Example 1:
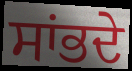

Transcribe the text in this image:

ਸਾਂਭਦੇ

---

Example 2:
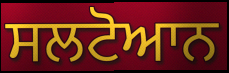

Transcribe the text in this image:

ਸਲਟੋਆਨ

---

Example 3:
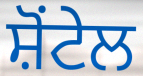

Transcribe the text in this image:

ਸ਼ੋਂਟੇਲ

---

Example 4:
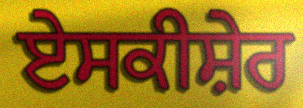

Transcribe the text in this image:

ਏਸਕੀਸ਼ੇਰ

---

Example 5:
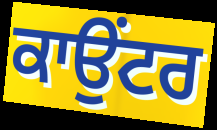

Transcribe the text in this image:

ਕਾਉਂਟਰ